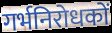
गर्भनिरोधकों